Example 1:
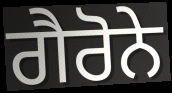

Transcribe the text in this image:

ਗੈਰੋਨੇ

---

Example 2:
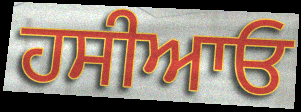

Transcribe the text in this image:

ਹਸੀਆਓ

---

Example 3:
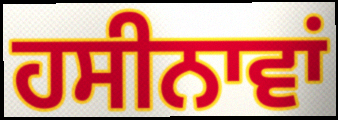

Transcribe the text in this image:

ਹਸੀਨਾਵਾਂ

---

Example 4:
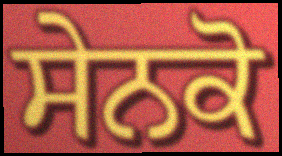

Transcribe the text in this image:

ਸੇਨਕੋ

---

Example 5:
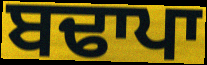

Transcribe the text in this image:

ਬਢਾਪਾ